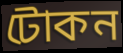
টোকন